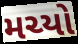
મચ્યો